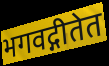
भगवद्गीतेत